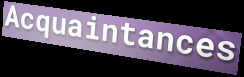
Acquaintances